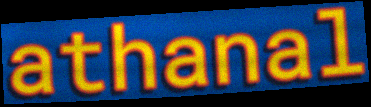
athanal